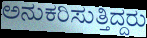
ಅನುಕರಿಸುತ್ತಿದ್ದರು